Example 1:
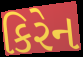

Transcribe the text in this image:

કિરેન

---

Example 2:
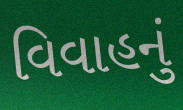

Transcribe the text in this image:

વિવાહનું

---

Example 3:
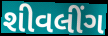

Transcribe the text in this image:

શીવલીંગ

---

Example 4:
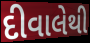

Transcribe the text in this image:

દીવાલેથી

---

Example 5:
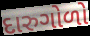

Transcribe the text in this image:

દારુગોળો